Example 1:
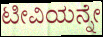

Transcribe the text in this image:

ಟೀವಿಯನ್ನೇ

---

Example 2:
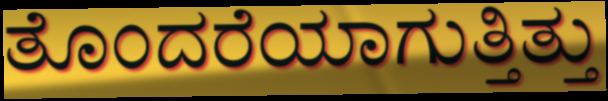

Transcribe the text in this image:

ತೊಂದರೆಯಾಗುತ್ತಿತ್ತು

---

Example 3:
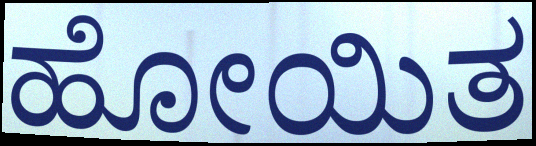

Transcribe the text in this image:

ಹೋಯಿತ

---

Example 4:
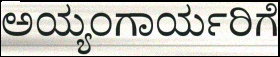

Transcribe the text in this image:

ಅಯ್ಯಂಗಾರ್ಯರಿಗೆ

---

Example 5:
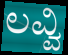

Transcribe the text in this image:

ಲವ್ವಿ